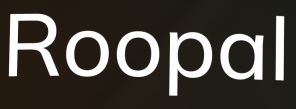
Roopal